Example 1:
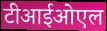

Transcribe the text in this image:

टीआईओएल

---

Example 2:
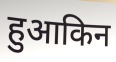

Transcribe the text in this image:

हुआकिन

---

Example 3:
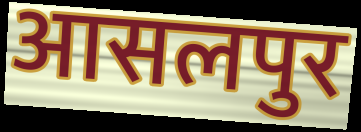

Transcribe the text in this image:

आसलपुर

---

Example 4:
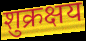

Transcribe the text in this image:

शुक्रक्षय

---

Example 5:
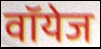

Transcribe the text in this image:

वॉयेज